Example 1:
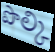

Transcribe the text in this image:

పొల్కి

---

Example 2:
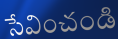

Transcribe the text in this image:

సేవించండి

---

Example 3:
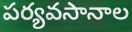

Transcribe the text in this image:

పర్యవసానాల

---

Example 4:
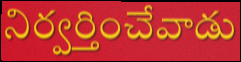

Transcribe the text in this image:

నిర్వర్తించేవాడు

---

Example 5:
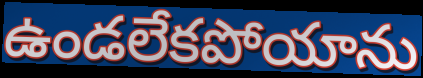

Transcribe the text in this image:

ఉండలేకపోయాను